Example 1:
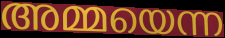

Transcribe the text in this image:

അമ്മയെന്ന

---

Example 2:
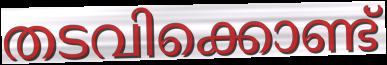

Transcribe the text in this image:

തടവിക്കൊണ്ട്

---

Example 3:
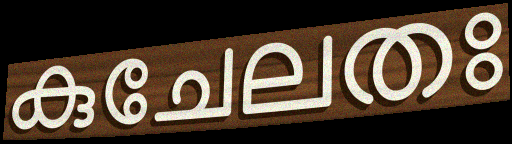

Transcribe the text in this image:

കുചേലതഃ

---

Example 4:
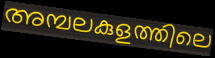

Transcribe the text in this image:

അമ്പലകുളത്തിലെ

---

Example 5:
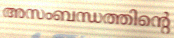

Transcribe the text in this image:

അസംബന്ധത്തിന്റെ